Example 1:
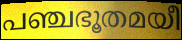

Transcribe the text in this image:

പഞ്ചഭൂതമയീ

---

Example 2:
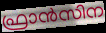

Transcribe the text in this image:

ഫ്രാൻസിന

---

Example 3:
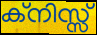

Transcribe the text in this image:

ക്നിസ്സ്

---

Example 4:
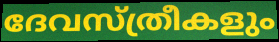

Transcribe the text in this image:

ദേവസ്ത്രീകളും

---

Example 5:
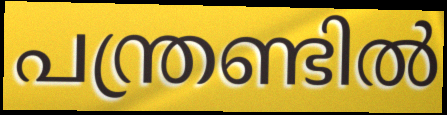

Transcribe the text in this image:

പന്ത്രണ്ടിൽ